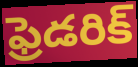
ఫ్రెడరిక్